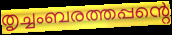
തൃച്ചംബരത്തപ്പന്റെ